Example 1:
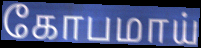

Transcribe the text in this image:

கோபமாய்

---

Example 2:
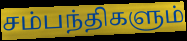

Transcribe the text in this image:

சம்பந்திகளும்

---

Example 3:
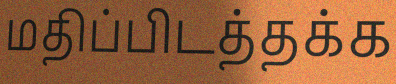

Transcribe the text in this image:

மதிப்பிடத்தக்க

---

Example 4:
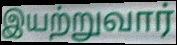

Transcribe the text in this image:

இயற்றுவார்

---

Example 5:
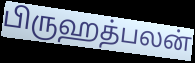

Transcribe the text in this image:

பிருஹத்பலன்